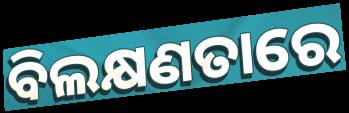
ବିଲକ୍ଷଣତାରେ